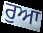
ਰੁਆ